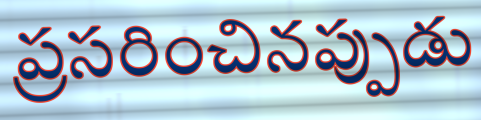
ప్రసరించినప్పుడు